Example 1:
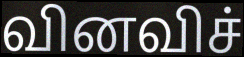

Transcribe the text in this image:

வினவிச்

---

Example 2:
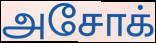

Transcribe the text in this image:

அசோக்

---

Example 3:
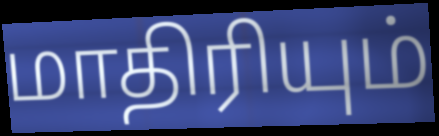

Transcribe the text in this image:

மாதிரியும்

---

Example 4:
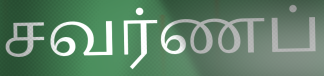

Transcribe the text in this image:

சவர்ணப்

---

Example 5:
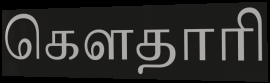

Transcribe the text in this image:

கௌதாரி